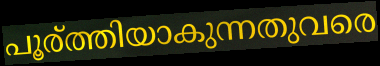
പൂര്ത്തിയാകുന്നതുവരെ